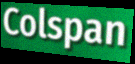
Colspan